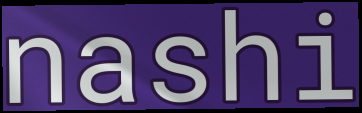
nashi